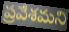
ప్రవేశమని